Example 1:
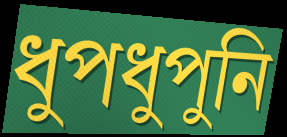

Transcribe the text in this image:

ধুপধুপুনি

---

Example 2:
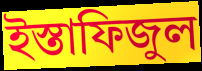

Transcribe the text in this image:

ইস্তাফিজুল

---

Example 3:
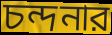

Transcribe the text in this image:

চন্দনার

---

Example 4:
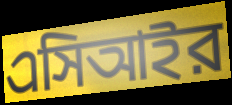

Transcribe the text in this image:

এসিআইর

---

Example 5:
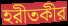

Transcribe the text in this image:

হরীতকীর